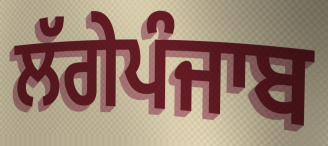
ਲੱਗੇਪੰਜਾਬ